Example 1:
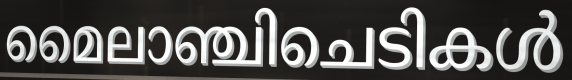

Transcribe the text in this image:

മൈലാഞ്ചിചെടികൾ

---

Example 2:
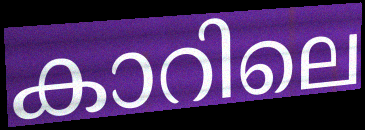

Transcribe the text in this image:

കാറിലെ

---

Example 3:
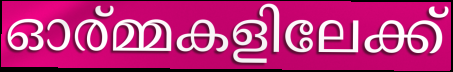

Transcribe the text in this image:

ഓര്മ്മകളിലേക്ക്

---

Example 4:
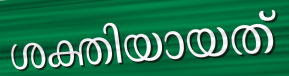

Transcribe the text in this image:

ശക്തിയായത്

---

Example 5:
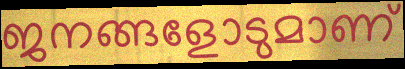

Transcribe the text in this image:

ജനങ്ങളോടുമാണ്